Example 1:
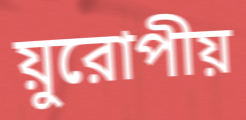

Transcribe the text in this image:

য়ুরোপীয়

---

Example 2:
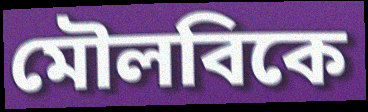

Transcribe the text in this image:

মৌলবিকে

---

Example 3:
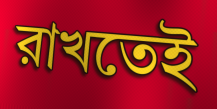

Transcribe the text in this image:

রাখতেই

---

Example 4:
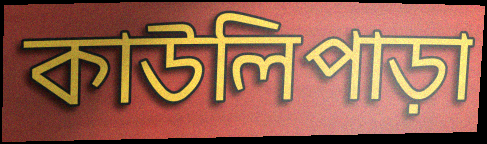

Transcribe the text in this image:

কাউলিপাড়া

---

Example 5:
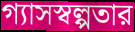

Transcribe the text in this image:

গ্যাসস্বল্পতার